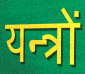
यन्त्रों